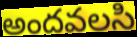
అందవలసి